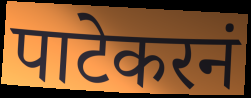
पाटेकरनं